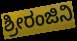
ಶ್ರೀರಂಜಿನಿ